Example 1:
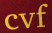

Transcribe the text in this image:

cvf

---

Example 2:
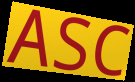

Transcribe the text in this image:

ASC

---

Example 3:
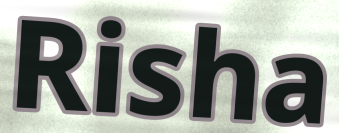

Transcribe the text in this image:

Risha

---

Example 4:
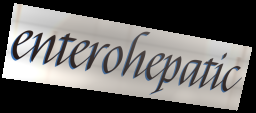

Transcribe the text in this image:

enterohepatic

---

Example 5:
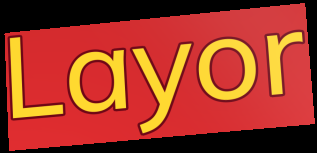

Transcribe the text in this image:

Layor